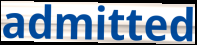
admitted